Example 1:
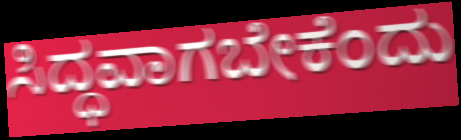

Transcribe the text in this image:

ಸಿದ್ಧವಾಗಬೇಕೆಂದು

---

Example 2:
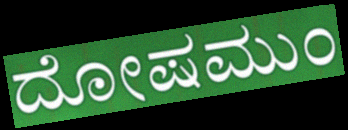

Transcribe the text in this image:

ದೋಷಮುಂ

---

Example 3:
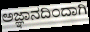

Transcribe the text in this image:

ಅಜ್ಞಾನದಿಂದಾಗಿ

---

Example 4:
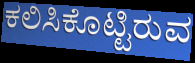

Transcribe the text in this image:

ಕಲಿಸಿಕೊಟ್ಟಿರುವ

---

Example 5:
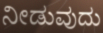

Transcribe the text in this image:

ನೀಡುವುದು